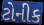
ટોનીક